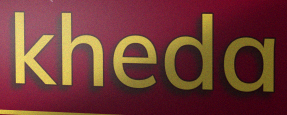
kheda